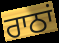
ਰਾਠਾਂ